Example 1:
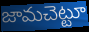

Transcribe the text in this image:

జామచెట్టూ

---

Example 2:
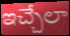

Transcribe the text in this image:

ఇచ్చేలా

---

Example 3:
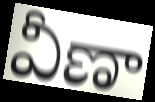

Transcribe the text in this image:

వీణా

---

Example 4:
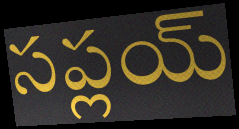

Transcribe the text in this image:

సప్లయ్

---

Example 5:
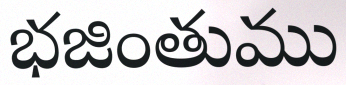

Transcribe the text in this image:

భజింతుము